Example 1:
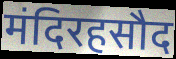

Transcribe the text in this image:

मंदिरहसौद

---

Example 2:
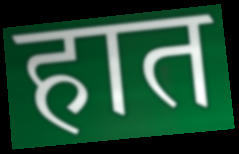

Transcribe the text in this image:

हात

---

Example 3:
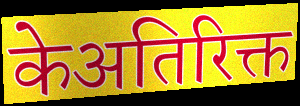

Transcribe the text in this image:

केअतिरिक्त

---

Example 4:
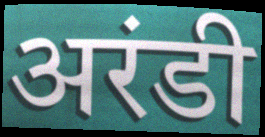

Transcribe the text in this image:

अरंडी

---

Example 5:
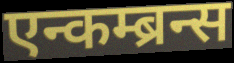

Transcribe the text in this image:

एन्कम्ब्रन्स